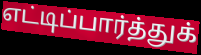
எட்டிப்பார்த்துக்